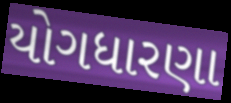
યોગધારણા